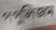
পপুলিজম